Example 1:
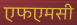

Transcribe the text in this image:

एफएमसी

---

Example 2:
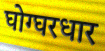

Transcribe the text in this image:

घोग्घरधार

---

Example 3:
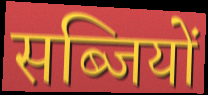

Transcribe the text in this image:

सब्जियों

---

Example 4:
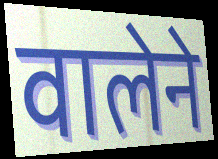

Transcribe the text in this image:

वालेने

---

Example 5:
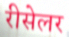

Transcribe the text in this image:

रीसेलर